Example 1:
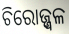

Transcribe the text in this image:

ଚିରୋଜ୍ଜ୍ଵଳ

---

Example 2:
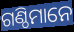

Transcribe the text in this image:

ଗଣ୍ଠିମାନେ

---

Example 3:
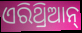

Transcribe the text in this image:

ଏରିଥ୍ରିଆନ୍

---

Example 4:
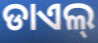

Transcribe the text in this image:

ଡାଏଲ୍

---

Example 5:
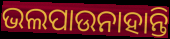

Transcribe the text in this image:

ଭଲପାଉନାହାନ୍ତି